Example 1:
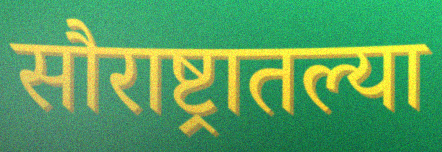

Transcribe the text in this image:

सौराष्ट्रातल्या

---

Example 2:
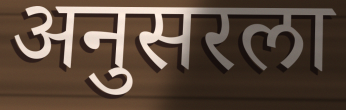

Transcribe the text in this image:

अनुसरला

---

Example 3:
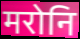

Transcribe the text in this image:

मरोनि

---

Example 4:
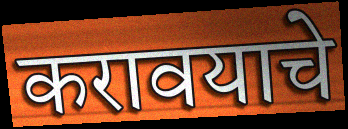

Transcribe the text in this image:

करावयाचे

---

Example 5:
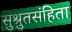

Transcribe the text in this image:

सुश्रुतसंहिता